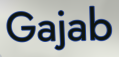
Gajab